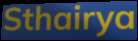
Sthairya